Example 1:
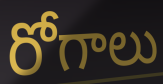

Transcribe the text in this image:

రోగాలు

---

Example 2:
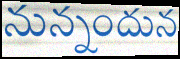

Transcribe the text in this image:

నున్నందున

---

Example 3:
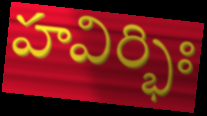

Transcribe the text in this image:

హవిర్భిః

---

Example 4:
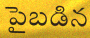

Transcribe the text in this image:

పైబడిన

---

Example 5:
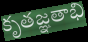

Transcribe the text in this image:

కృతజ్ఞతాభి